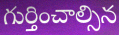
గుర్తించాల్సిన